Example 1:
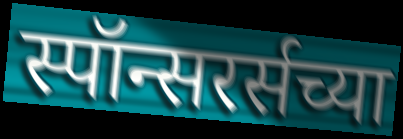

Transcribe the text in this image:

स्पॉन्सरर्सच्या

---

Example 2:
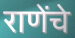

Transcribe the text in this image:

राणेंचे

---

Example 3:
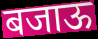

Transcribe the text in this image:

बजाऊ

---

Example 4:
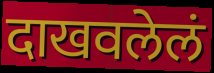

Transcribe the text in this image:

दाखवलेलं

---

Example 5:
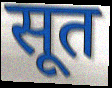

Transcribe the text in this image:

सूत